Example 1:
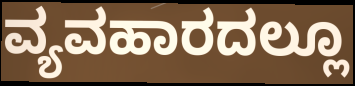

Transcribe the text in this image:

ವ್ಯವಹಾರದಲ್ಲೂ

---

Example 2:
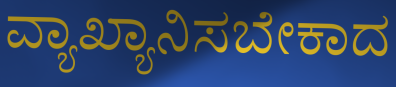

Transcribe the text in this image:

ವ್ಯಾಖ್ಯಾನಿಸಬೇಕಾದ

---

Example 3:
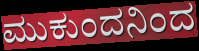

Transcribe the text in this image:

ಮುಕುಂದನಿಂದ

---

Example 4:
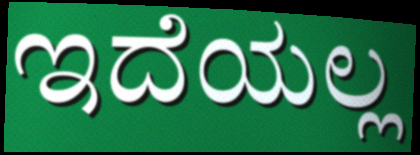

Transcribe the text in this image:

ಇದೆಯಲ್ಲ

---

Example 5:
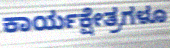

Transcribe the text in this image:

ಕಾರ್ಯಕ್ಷೇತ್ರಗಳೂ